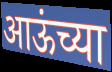
आऊंच्या